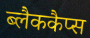
ब्लैककैप्स